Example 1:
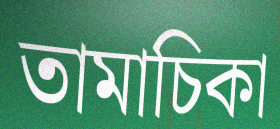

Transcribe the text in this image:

তামাচিকা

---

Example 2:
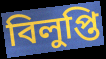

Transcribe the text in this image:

বিলুপ্তি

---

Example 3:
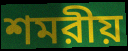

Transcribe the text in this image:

শমরীয়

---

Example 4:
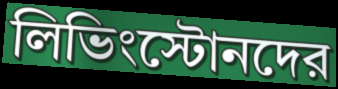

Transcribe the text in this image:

লিভিংস্টোনদের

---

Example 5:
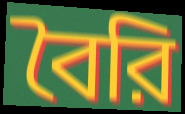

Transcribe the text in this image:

বৈরি